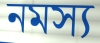
নমস্য